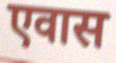
एवास